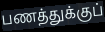
பணத்துக்குப்